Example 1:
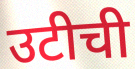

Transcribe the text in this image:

उटीची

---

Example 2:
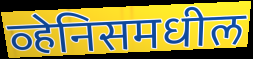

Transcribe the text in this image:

व्हेनिसमधील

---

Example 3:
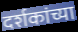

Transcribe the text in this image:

दर्शकांच्या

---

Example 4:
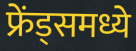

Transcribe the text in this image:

फ्रेंड्समध्ये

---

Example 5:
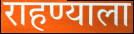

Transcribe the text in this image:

राहण्याला